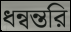
ধন্বন্তরি